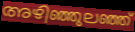
അഴിഞ്ഞുലഞ്ഞ്